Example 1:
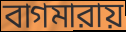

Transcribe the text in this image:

বাগমারায়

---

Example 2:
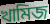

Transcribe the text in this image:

খামিজ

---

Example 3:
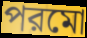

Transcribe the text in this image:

পরমো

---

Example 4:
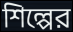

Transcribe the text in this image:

শিল্পের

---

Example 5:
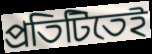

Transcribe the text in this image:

প্রতিটিতেই